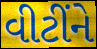
વીટીંને